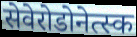
सेवेरोडोनेत्स्क